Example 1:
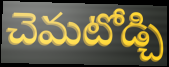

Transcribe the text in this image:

చెమటోడ్చి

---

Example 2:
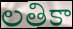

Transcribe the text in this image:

లతికా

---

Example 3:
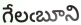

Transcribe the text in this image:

గేలఁబూని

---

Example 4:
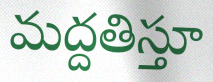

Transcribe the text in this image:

మద్దతిస్తూ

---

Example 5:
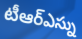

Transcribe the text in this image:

టీఆర్ఎస్ను